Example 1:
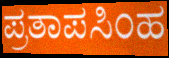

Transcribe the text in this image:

ಪ್ರತಾಪಸಿಂಹ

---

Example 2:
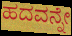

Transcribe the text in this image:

ಹದವನ್ನೇ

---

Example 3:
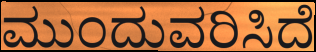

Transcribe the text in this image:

ಮುಂದುವರಿಸಿದೆ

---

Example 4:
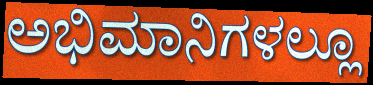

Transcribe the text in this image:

ಅಭಿಮಾನಿಗಳಲ್ಲೂ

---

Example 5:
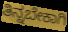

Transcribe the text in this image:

ತಿನ್ನಬೇಕಾಗಿ